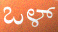
ಒಳ್